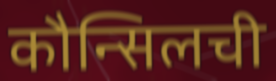
कौन्सिलची